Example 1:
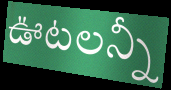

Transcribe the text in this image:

ఊటలన్నీ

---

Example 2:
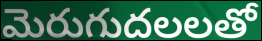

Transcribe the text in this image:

మెరుగుదలలతో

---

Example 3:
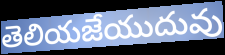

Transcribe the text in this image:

తెలియజేయుదువు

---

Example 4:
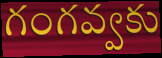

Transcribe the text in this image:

గంగవ్వకు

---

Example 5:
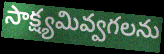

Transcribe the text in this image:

సాక్ష్యమివ్వగలను